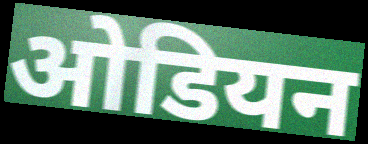
ओडियन